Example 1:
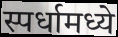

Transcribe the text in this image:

स्पर्धामध्ये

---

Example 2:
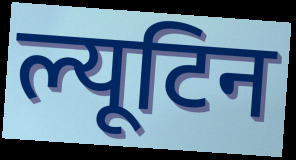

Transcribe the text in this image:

ल्यूटिन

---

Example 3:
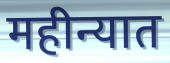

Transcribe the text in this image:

महीन्यात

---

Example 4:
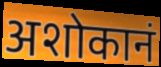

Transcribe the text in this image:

अशोकानं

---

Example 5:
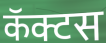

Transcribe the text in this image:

कॅक्टस